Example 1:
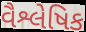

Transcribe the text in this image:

વૈશ્લેષિક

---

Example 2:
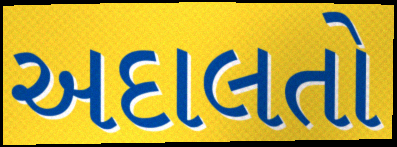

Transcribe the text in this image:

અદાલતો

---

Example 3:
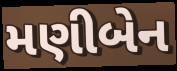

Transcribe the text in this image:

મણીબેન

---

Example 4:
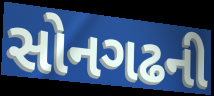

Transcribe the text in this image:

સોનગઢની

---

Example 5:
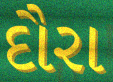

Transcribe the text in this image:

દૌરા